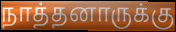
நாத்தனாருக்கு